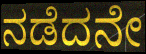
ನಡೆದನೇ